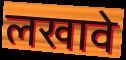
लखावे